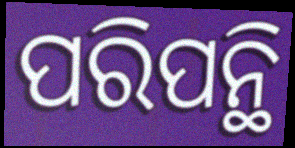
ପରିପନ୍ଥି